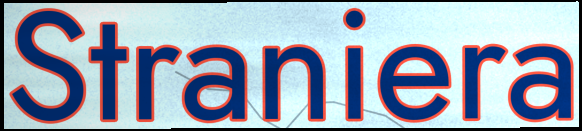
Straniera